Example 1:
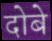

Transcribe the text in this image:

दोबे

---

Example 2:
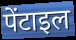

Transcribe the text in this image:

पेंटाइल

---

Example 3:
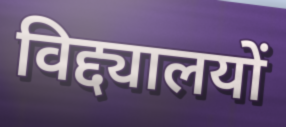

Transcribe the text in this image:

विद्द्यालयों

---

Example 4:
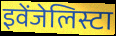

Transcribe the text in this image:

इवेंजेलिस्टा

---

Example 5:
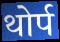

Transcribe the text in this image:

थोर्प